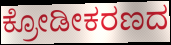
ಕ್ರೋಡೀಕರಣದ